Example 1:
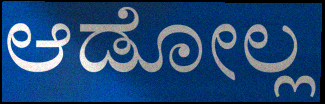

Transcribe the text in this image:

ಆಡೋಲ್ಲ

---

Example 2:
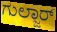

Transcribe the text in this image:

ಗುಲ್ಜಾರ್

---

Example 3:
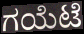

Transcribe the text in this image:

ಗಯೆಟೆ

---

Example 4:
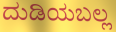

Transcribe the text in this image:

ದುಡಿಯಬಲ್ಲ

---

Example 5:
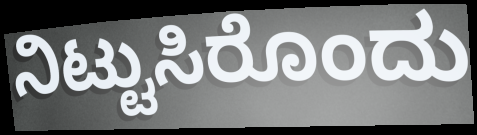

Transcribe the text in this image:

ನಿಟ್ಟುಸಿರೊಂದು